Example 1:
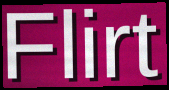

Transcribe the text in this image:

Flirt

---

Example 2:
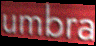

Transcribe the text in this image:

umbra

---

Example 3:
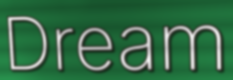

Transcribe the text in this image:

Dream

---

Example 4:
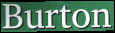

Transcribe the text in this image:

Burton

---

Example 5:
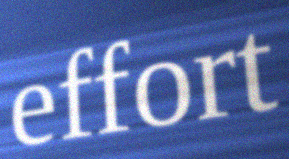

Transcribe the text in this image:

effort